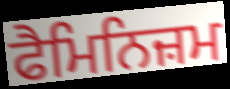
ਫੈਮਿਨਿਜ਼ਮ